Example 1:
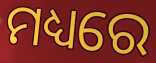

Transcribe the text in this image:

ମଧ୍ୟରେ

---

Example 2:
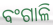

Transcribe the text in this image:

ବଂଗାଳି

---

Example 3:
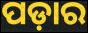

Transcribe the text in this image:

ପଡ଼ାର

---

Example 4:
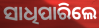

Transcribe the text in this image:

ସାଧିପାରିଲେ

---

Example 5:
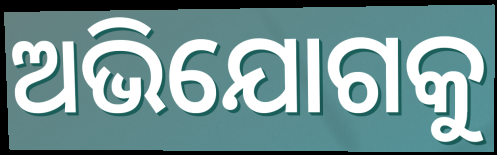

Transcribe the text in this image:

ଅଭିଯୋଗକୁ